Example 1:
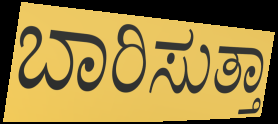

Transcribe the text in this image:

ಬಾರಿಸುತ್ತಾ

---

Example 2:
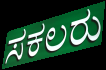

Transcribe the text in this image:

ಸಕಲರು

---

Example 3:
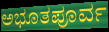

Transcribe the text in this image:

ಅಭೂತಪೂರ್ವ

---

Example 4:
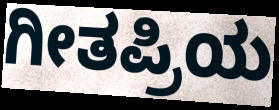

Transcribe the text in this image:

ಗೀತಪ್ರಿಯ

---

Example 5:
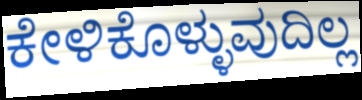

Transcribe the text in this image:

ಕೇಳಿಕೊಳ್ಳುವುದಿಲ್ಲ